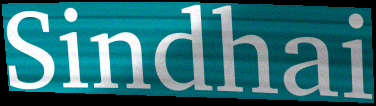
Sindhai